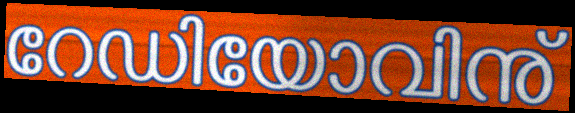
റേഡിയോവിനു്